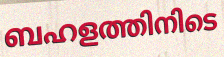
ബഹളത്തിനിടെ